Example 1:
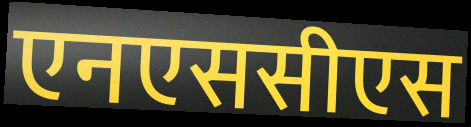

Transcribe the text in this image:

एनएससीएस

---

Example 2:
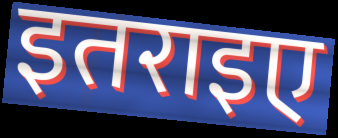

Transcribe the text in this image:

इतराइए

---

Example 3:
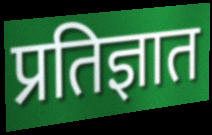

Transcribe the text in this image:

प्रतिज्ञात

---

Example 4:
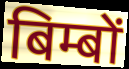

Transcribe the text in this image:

बिम्बों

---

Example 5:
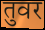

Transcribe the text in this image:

तुवर